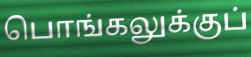
பொங்கலுக்குப்